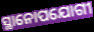
ସ୍ଥାନୋପଯୋଗୀ